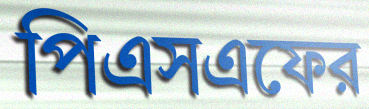
পিএসএফের